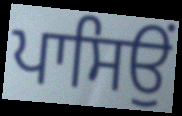
ਪਾਸਿਉਂ